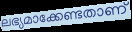
ലഭ്യമാക്കേണ്ടതാണ്